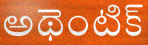
అథెంటిక్